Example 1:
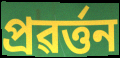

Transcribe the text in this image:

প্ৰৱৰ্ত্তন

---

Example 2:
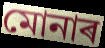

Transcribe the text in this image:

মোনাৰ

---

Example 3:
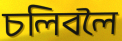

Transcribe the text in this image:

চলিবলৈ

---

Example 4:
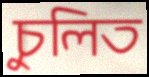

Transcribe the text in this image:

চুলিত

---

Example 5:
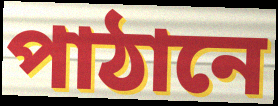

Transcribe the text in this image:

পাঠানে